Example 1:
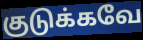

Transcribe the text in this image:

குடுக்கவே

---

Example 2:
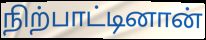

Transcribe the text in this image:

நிற்பாட்டினான்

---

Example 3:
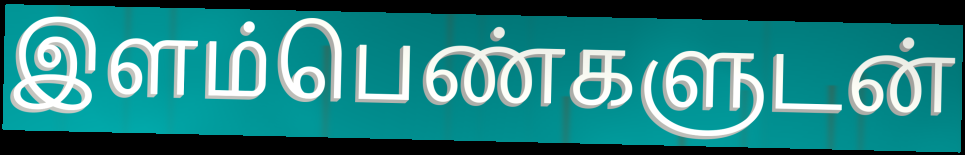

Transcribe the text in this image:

இளம்பெண்களுடன்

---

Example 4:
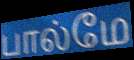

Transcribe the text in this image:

பால்மே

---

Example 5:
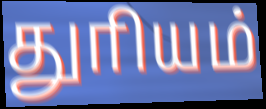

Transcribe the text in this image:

துரியம்